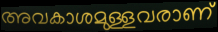
അവകാശമുള്ളവരാണ്